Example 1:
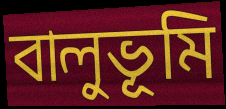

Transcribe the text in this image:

বালুভূমি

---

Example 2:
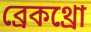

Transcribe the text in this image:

ব্রেকথ্রো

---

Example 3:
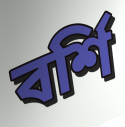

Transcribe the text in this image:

বর্শি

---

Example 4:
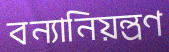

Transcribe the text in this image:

বন্যানিয়ন্ত্রণ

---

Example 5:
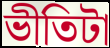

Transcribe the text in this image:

ভীতিটা